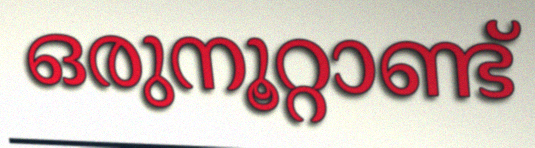
ഒരുനൂറ്റാണ്ട്